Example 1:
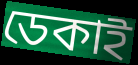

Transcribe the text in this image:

ডেকাই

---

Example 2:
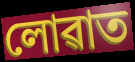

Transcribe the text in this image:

লোৱাত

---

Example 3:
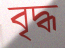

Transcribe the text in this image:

বৃদ্ধ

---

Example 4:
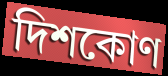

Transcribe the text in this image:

দিশকোণ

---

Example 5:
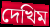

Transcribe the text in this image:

দেখিম